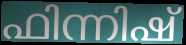
ഫിന്നിഷ്